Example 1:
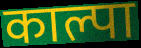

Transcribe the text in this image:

काल्पा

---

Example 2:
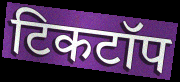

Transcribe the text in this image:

टिकटॉप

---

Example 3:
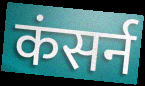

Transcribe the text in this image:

कंसर्न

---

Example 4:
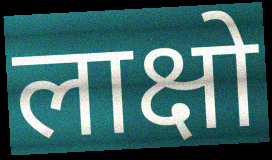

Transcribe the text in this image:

लाक्षो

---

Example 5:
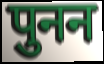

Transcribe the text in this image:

पुनन